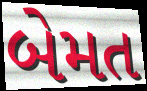
બેમત